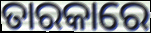
ତାରକାରେ